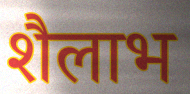
शैलाभ